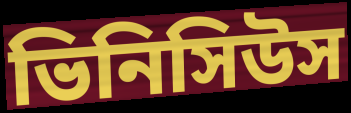
ভিনিসিউস